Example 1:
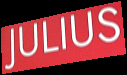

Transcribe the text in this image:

JULIUS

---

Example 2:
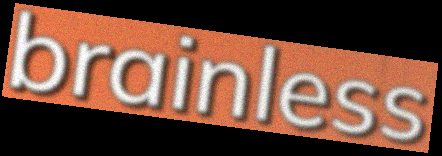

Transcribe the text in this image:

brainless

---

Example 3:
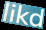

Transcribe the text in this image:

likd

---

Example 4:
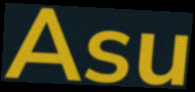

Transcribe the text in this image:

Asu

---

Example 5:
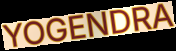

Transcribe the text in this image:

YOGENDRA